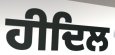
ਹੀਦਿਲ